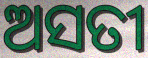
ଅସତୀ